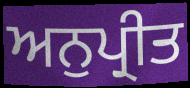
ਅਨੁਪ੍ਰੀਤ